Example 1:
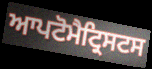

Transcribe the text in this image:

ਆਪਟੋਮੈਟ੍ਰਿਸਟਸ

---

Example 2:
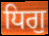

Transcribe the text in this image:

ਧਿਗੁ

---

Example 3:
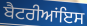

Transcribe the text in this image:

ਬੈਟਰੀਆਂਇਸ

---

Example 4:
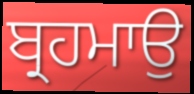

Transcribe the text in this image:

ਬ੍ਰਹਮਾਉ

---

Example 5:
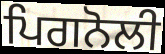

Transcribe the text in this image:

ਪਿਗਨੋਲੀ